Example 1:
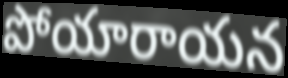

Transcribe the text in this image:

పోయారాయన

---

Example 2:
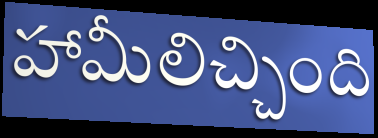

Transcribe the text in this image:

హామీలిచ్చింది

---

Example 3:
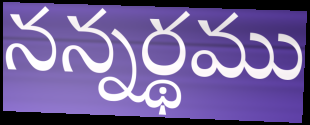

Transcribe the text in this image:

నన్నర్థము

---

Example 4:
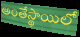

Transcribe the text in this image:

అంతేస్థాయిలో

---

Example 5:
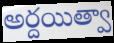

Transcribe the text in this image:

అర్దయిత్వా